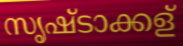
സൃഷ്ടാക്കള്